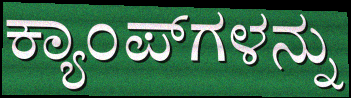
ಕ್ಯಾಂಪ್‍ಗಳನ್ನು